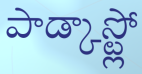
పాడ్కాస్ట్లో